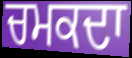
ਚਮਕਦਾ